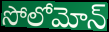
సోలోమోన్